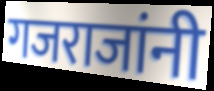
गजराजांनी